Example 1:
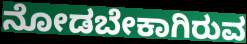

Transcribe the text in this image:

ನೋಡಬೇಕಾಗಿರುವ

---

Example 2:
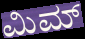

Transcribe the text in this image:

ಮಿಮ್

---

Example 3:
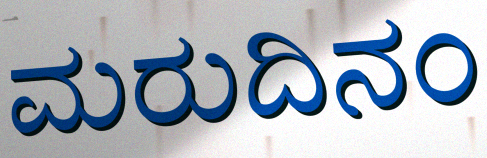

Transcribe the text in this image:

ಮರುದಿನಂ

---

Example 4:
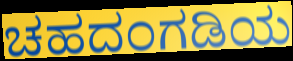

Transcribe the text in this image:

ಚಹದಂಗಡಿಯ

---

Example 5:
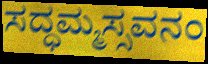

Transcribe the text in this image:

ಸದ್ಧಮ್ಮಸ್ಸವನಂ